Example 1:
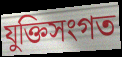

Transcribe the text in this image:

যুক্তিসংগত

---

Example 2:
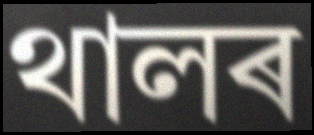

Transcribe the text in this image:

থালৰ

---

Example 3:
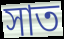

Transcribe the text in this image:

সাত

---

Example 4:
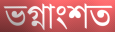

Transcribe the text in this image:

ভগ্নাংশত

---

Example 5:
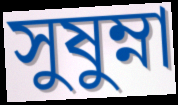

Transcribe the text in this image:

সুষুম্না